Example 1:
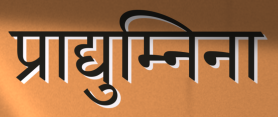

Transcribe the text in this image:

प्राद्युम्निना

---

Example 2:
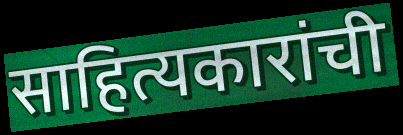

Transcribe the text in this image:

साहित्यकारांची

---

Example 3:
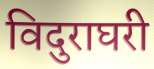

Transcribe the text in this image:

विदुराघरी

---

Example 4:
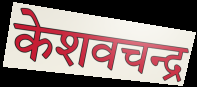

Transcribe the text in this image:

केशवचन्द्र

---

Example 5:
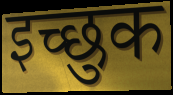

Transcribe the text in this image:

इच्छुक